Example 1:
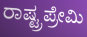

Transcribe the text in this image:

ರಾಷ್ಟ್ರಪ್ರೇಮಿ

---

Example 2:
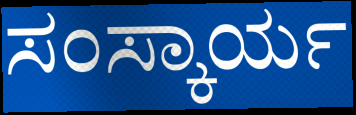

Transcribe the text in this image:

ಸಂಸ್ಕಾರ್ಯ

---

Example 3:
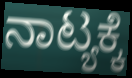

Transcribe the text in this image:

ನಾಟ್ಯಕ್ಕೆ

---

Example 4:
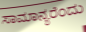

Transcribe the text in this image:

ಸಾಮಾನ್ಯರೆಂದು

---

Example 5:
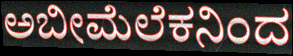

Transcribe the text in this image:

ಅಬೀಮೆಲೆಕನಿಂದ